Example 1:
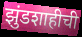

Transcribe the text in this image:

झुंडशाहीची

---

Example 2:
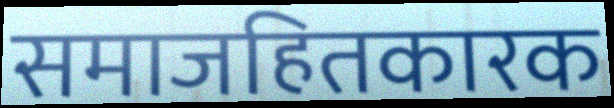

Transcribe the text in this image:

समाजहितकारक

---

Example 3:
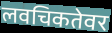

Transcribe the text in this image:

लवचिकतेवर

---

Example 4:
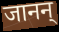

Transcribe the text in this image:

जानन्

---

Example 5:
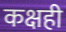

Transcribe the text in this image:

कक्षही